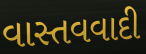
વાસ્તવવાદી